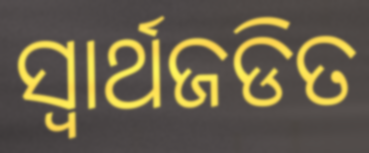
ସ୍ଵାର୍ଥଜଡିତ